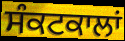
ਸੰਕਟਕਾਲਾਂ